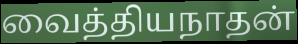
வைத்தியநாதன்